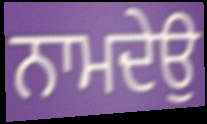
ਨਾਮਦੇਉ